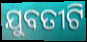
ଯୁବତୀଟି